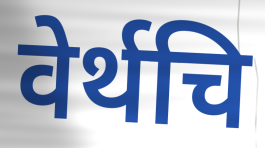
वेर्थचि